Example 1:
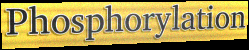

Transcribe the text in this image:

Phosphorylation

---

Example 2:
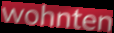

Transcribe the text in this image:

wohnten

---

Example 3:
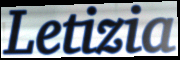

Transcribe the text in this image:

Letizia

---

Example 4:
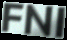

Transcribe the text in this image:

FNI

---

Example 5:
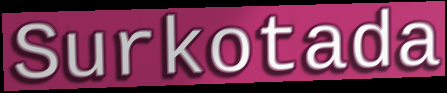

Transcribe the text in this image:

Surkotada